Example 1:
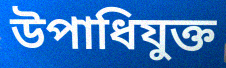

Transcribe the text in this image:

উপাধিযুক্ত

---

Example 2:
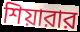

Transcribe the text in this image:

শিয়ারার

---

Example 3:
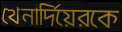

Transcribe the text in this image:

থেনার্দিয়েরকে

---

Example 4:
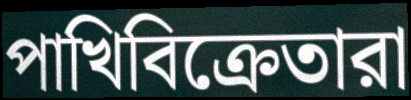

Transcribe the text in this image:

পাখিবিক্রেতারা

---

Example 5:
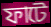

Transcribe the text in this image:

ফাটে